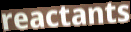
reactants